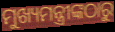
ମୁଖ୍ୟମନ୍ତ୍ରୀଙ୍କଠାରୁ